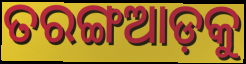
ତରଙ୍ଗଆଡ଼କୁ